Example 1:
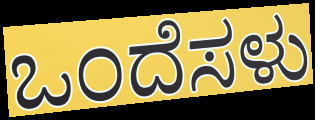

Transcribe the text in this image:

ಒಂದೆಸಳು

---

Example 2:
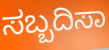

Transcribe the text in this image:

ಸಬ್ಬದಿಸಾ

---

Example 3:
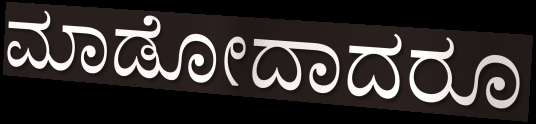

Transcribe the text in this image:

ಮಾಡೋದಾದರೂ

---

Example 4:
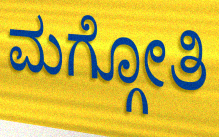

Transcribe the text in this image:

ಮಗ್ಗೋತಿ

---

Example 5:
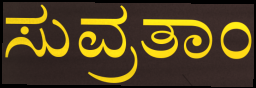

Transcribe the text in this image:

ಸುವ್ರತಾಂ